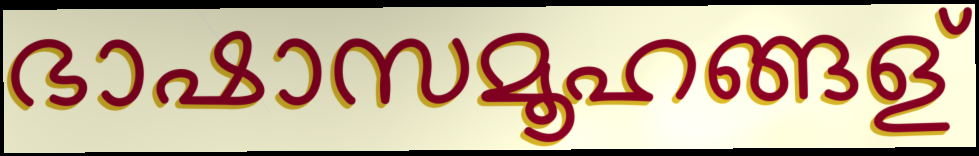
ഭാഷാസമൂഹങ്ങള്